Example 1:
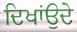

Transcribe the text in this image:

ਦਿਖਾਂਉਦੇ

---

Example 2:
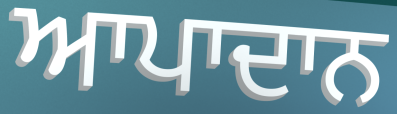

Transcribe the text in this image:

ਆਪਾਦਾਨ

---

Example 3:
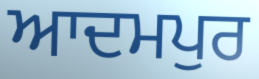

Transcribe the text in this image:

ਆਦਮਪੁਰ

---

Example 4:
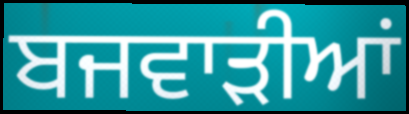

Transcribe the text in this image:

ਬਜਵਾੜੀਆਂ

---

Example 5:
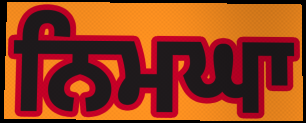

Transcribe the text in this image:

ਨਿਮਘਾ